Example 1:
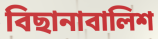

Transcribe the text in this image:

বিছানাবালিশ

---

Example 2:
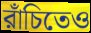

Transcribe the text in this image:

রাঁচিতেও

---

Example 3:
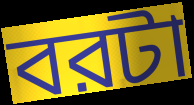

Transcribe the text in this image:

বরটা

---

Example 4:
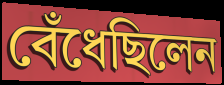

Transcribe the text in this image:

বেঁধেছিলেন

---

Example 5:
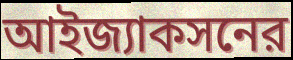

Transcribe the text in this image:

আইজ্যাকসনের